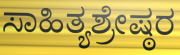
ಸಾಹಿತ್ಯಶ್ರೇಷ್ಠರ